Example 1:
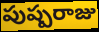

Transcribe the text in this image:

పుష్పరాజు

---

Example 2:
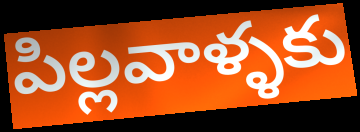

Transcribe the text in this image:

పిల్లవాళ్ళకు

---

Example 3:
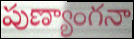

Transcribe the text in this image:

పుణ్యాంగనా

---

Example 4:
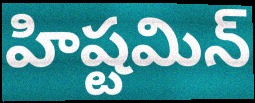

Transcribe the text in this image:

హిష్టమిన్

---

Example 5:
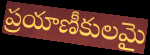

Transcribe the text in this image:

ప్రయాణీకులమై